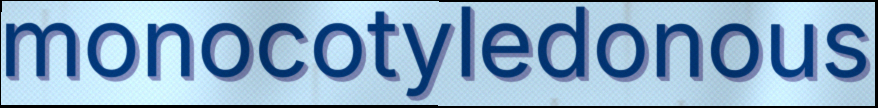
monocotyledonous